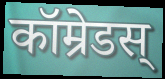
कॉम्रेडस्